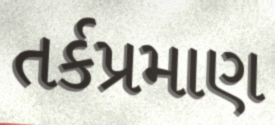
તર્કપ્રમાણ